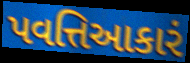
પવત્તિઆકારં